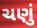
ચણું